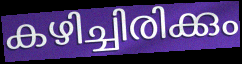
കഴിച്ചിരിക്കും